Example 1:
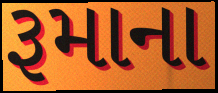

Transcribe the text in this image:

રૂમાના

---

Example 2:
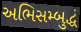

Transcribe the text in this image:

અભિસમ્બુદ્ધં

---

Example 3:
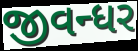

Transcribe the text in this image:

જીવન્ધર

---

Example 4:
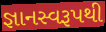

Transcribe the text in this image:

જ્ઞાનસ્વરૂપથી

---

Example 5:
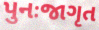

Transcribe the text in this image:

પુનઃજાગૃત